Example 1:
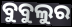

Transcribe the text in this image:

ବୁବୁଲୁର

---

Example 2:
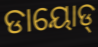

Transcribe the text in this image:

ଡାୟୋଡ୍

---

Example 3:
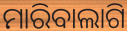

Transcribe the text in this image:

ମାରିବାଲାଗି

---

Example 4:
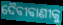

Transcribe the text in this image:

ଦୈବୀବାଣୀକୁ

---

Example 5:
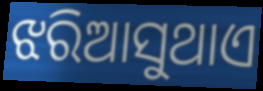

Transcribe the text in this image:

ଝରିଆସୁଥାଏ